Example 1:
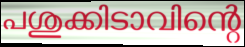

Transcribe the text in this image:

പശുക്കിടാവിന്റെ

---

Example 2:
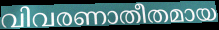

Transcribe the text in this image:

വിവരണാതീതമായ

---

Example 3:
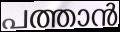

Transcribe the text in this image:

പത്താൻ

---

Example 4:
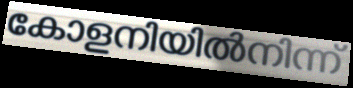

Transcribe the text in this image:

കോളനിയിൽനിന്ന്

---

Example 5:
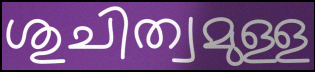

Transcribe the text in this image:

ശുചിത്വമുള്ള